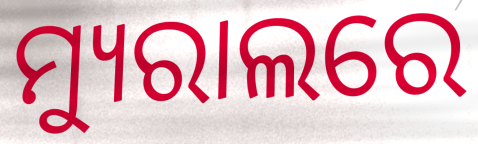
ମ୍ୟୁରାଲରେ